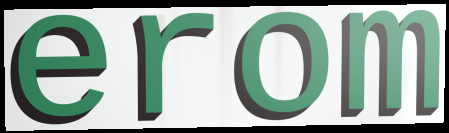
erom